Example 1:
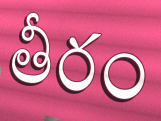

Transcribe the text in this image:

తీరం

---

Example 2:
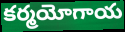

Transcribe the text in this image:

కర్మయోగాయ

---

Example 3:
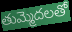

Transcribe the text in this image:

తుమ్మెదలతో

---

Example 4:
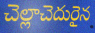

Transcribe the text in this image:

చెల్లాచెదురైన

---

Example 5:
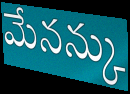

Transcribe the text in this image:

మేనన్కు